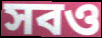
সবও